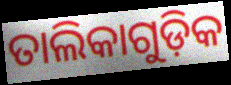
ତାଲିକାଗୁଡ଼ିକ